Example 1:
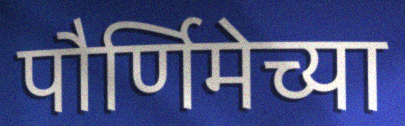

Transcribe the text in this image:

पौर्णिमेच्या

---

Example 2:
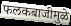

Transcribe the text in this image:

फलकबाजीमुळे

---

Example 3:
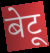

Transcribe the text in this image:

बेटू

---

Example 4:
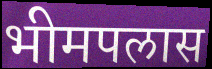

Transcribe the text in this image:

भीमपलास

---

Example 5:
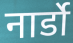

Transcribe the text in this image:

नार्डो